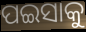
ପଇସାକୁ